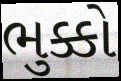
ભુક્કો